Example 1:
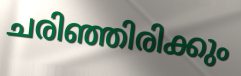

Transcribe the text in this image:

ചരിഞ്ഞിരിക്കും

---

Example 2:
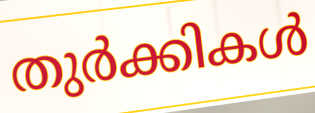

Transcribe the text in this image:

തുർക്കികൾ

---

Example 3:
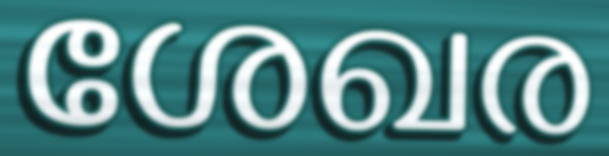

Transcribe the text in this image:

ശേഖര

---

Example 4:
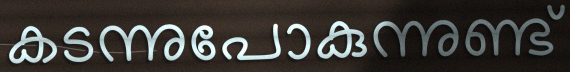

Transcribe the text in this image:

കടന്നുപോകുന്നുണ്ട്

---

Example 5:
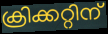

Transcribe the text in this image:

ക്രിക്കറ്റിന്